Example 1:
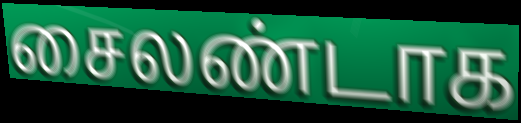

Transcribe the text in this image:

சைலண்டாக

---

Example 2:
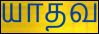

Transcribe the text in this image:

யாதவ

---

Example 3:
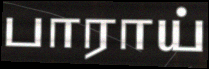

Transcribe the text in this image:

பாராய்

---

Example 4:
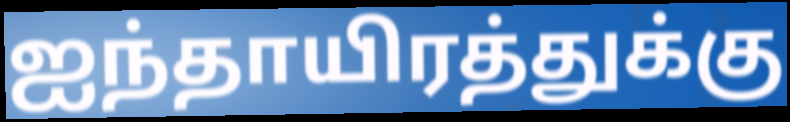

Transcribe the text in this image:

ஐந்தாயிரத்துக்கு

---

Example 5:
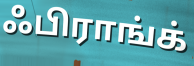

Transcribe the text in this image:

ஃபிராங்க்